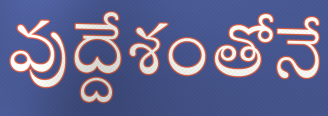
వుద్దేశంతోనే